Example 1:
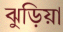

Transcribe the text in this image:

ঝুড়িয়া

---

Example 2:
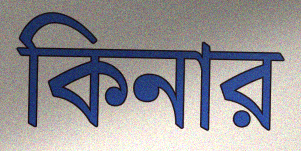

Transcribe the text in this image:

কিনার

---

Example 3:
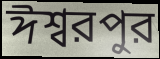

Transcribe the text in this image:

ঈশ্বরপুর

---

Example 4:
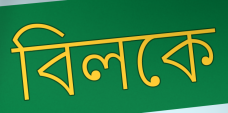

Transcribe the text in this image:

বিলকে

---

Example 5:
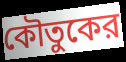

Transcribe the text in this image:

কৌতুকের